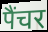
पैंचर